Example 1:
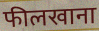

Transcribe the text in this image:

फीलखाना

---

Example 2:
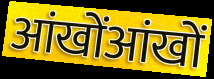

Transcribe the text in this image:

आंखोंआंखों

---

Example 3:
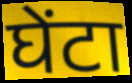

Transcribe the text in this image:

घेंटा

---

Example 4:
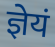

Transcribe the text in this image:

ज्ञेयं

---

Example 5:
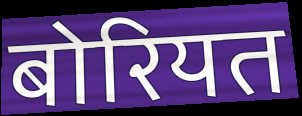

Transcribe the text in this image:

बोरियत